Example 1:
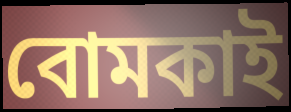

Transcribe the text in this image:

বোমকাই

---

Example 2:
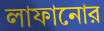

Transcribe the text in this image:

লাফানোর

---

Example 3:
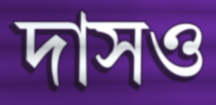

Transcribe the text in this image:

দাসও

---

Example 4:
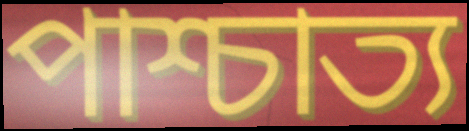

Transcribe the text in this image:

পাশ্চাত্য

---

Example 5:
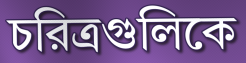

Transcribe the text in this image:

চরিত্রগুলিকে